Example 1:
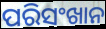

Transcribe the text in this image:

ପରିସଂଖାନ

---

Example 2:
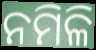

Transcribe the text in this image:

ନମିଳି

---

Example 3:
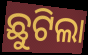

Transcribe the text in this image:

ଛୁଟିଲା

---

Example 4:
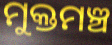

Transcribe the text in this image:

ମୁକ୍ତମଞ୍ଚ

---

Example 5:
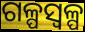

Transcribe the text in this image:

ଗଳ୍ପସ୍ୱଳ୍ପ